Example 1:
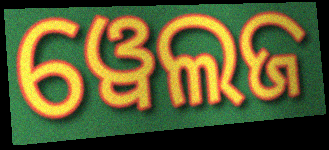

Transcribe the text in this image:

ୱେଲଜ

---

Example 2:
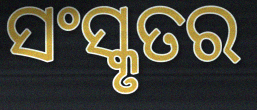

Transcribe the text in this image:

ସଂସ୍କୃତର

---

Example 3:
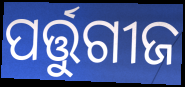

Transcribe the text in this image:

ପର୍ତ୍ତୁଗୀଜ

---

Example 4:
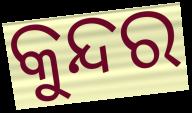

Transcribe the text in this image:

କୁନ୍ଦର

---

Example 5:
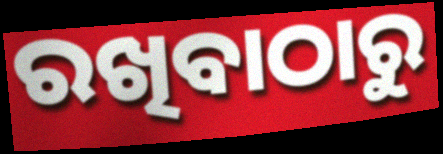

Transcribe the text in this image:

ରଖିବାଠାରୁ